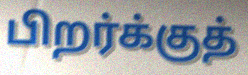
பிறர்க்குத்